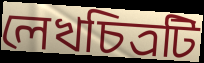
লেখচিত্রটি